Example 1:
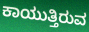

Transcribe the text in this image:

ಕಾಯುತ್ತಿರುವ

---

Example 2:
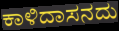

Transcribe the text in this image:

ಕಾಳಿದಾಸನದು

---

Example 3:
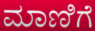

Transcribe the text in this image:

ಮಾಣಿಗೆ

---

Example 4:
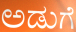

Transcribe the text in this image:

ಅಡುಗೆ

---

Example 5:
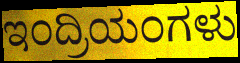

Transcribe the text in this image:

ಇಂದ್ರಿಯಂಗಳು